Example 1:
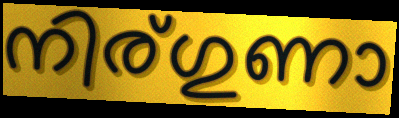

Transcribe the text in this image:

നിര്ഗുണാ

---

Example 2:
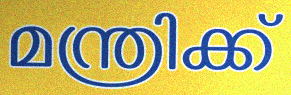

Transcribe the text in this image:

മന്ത്രിക്ക്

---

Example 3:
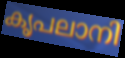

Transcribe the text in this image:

കൃപലാനി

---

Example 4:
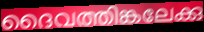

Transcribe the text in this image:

ദൈവത്തിങ്കലേക്കു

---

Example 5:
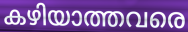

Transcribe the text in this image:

കഴിയാത്തവരെ